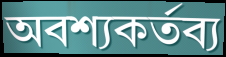
অবশ্যকর্তব্য